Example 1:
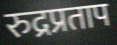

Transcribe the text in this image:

रुद्रप्रताप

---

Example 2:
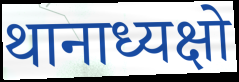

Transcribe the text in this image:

थानाध्यक्षो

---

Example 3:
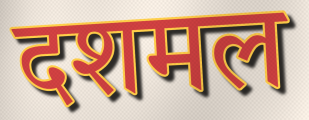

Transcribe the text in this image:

दशमल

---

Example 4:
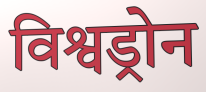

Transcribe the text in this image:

विश्वड्रोन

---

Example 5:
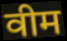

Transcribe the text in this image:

वीम